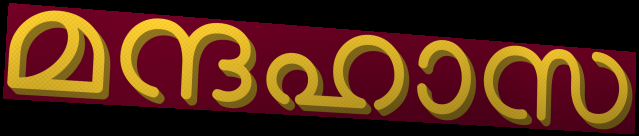
മന്ദഹാസ